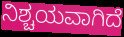
ನಿಶ್ಚಯವಾಗಿದೆ